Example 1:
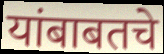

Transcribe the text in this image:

यांबाबतचे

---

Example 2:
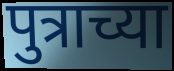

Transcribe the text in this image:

पुत्राच्या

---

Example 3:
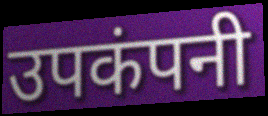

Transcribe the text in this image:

उपकंपनी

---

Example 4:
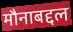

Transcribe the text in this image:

मौनाबद्दल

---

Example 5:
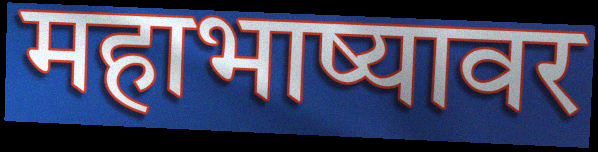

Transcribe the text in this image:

महाभाष्यावर